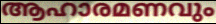
ആഹാരമണവും